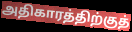
அதிகாரத்திற்குத்